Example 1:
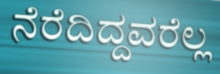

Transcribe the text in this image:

ನೆರೆದಿದ್ದವರೆಲ್ಲ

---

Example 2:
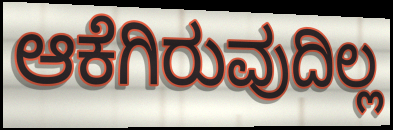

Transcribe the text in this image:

ಆಕೆಗಿರುವುದಿಲ್ಲ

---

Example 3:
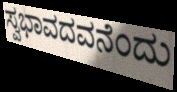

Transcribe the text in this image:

ಸ್ವಭಾವದವನೆಂದು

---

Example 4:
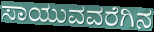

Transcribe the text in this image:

ಸಾಯುವವರೆಗಿನ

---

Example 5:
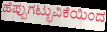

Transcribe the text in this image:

ಹೆಪ್ಪುಗಟ್ಟುವಿಕೆಯಿಂದ